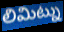
లిమిట్ను